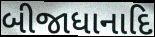
બીજાધાનાદિ